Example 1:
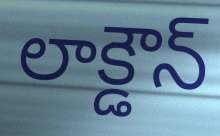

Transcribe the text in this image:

లాక్డౌన్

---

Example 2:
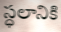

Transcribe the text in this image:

స్ధలానికి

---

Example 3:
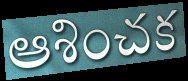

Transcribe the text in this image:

ఆశించక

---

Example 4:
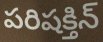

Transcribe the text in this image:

పరిషక్తిన్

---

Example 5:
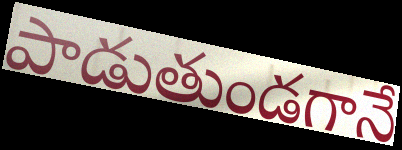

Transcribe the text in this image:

పాడుతుండగానే